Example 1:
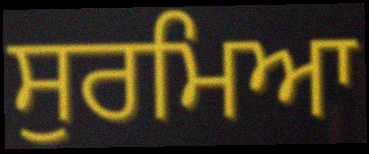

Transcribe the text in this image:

ਸੁਰਮਿਆ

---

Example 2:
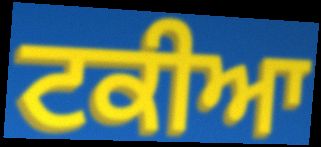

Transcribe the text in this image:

ਟਕੀਆ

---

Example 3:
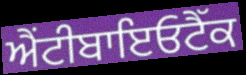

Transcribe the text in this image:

ਐਂਟੀਬਾਇਓਟੈੱਕ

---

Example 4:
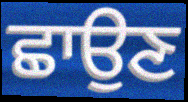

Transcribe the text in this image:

ਛਾਉਣ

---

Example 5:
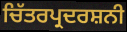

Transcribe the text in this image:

ਚਿੱਤਰਪ੍ਰਦਰਸ਼ਨੀ